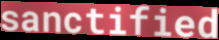
sanctified